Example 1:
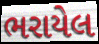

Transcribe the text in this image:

ભરાયેલ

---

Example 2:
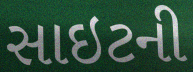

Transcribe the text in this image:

સાઇટની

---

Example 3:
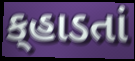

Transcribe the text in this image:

ક્‌હાડતાં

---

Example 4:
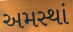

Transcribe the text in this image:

અમસ્થાં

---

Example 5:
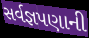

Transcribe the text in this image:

સર્વજ્ઞપણાની